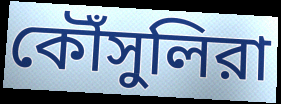
কৌঁসুলিরা